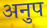
अनुप